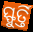
ସ୍ଫୁର୍ତ୍ତି